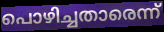
പൊഴിച്ചതാരെന്ന്